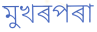
মুখৰপৰা